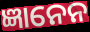
ଜ୍ଞାନେନ